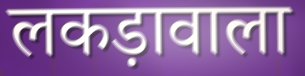
लकड़ावाला